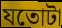
যতোটা